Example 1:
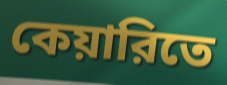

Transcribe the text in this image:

কেয়ারিতে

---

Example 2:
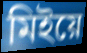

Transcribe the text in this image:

মিইয়ে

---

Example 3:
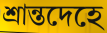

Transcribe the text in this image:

শ্রান্তদেহে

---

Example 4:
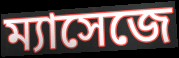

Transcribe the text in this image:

ম্যাসেজে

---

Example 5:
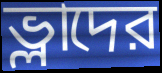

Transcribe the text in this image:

ভ্লাদের